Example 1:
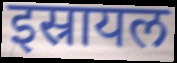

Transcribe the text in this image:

इस्रायल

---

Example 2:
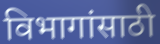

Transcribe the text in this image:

विभागांसाठी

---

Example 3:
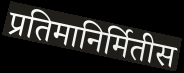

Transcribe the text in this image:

प्रतिमानिर्मितीस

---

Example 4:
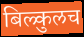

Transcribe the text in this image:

बिल्कुलच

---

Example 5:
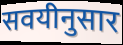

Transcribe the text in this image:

सवयीनुसार